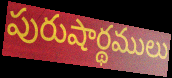
పురుషార్థములు